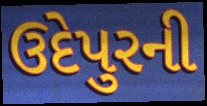
ઉદેપુરની